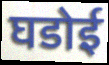
घडोई